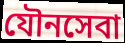
যৌনসেবা